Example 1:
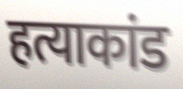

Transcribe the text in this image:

हत्याकांड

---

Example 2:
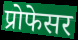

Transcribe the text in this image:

प्रोफेसर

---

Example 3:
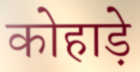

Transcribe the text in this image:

कोहाड़े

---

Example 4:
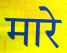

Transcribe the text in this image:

मारे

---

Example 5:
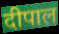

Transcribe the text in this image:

दीपाल